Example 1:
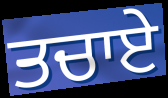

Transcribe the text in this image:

ਤਚਾਏ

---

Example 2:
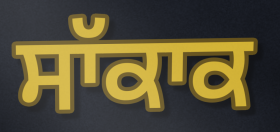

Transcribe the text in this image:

ਸਾੱਕਾਕ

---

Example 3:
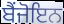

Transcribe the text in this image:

ਬੈਂਜੋਇਨ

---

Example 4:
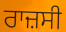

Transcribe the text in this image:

ਰਾਜ਼ਸੀ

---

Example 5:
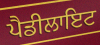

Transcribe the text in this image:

ਪੈਡੀਲਾਇਟ